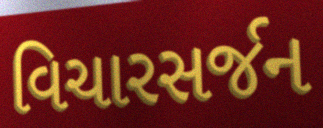
વિચારસર્જન